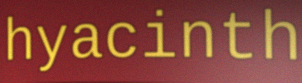
hyacinth